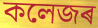
কলেজৰ